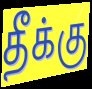
தீக்கு